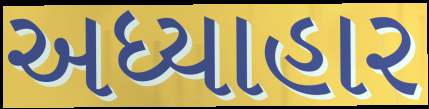
અધ્યાહાર